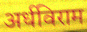
अर्धविराम